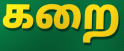
கறை